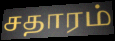
சதாரம்